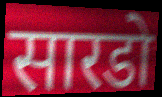
सारडो